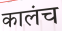
कालंच